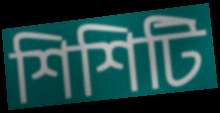
শিশিটি